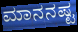
ಮಾನನಷ್ಟ